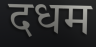
दधम